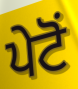
ਪੇਟੋਂ